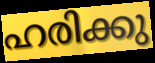
ഹരിക്കു